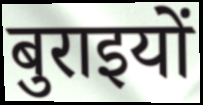
बुराइयों